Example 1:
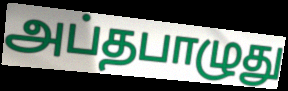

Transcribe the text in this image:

அப்தபாழுது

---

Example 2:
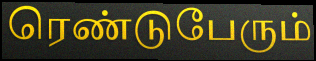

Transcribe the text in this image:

ரெண்டுபேரும்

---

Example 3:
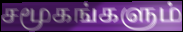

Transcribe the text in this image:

சமூகங்களும்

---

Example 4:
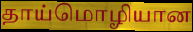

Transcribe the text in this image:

தாய்மொழியான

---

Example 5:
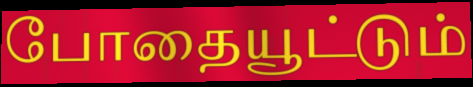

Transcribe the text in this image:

போதையூட்டும்